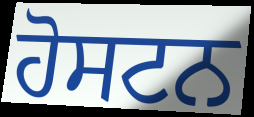
ਹੋਸਟਨ